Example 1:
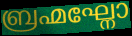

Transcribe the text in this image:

ബ്രഹ്മഘ്നോ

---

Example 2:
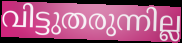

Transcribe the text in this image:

വിട്ടുതരുന്നില്ല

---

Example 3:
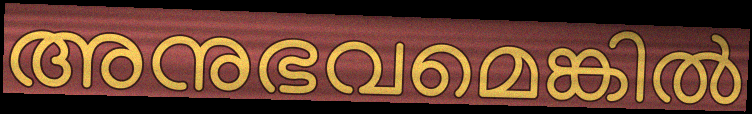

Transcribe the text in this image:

അനുഭവമെങ്കിൽ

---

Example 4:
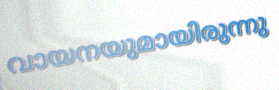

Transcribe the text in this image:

വായനയുമായിരുന്നു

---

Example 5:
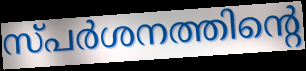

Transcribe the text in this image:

സ്പർശനത്തിന്റെ